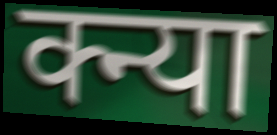
क्न्या